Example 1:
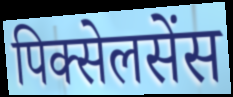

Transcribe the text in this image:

पिक्सेलसेंस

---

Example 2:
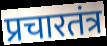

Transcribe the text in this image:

प्रचारतंत्र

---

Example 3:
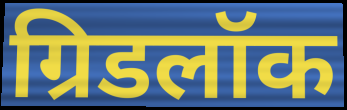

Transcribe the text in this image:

ग्रिडलॉक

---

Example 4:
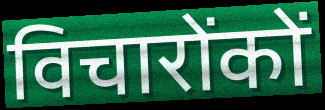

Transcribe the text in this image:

विचारोंकों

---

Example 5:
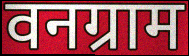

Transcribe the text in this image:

वनग्राम